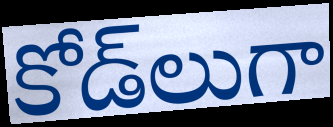
కోడ్‌లుగా